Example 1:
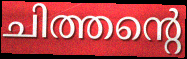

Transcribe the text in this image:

ചിത്തന്റെ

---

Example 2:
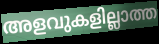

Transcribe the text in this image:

അളവുകളില്ലാത്ത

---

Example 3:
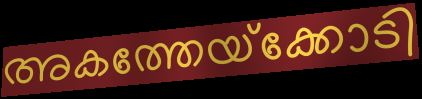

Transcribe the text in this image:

അകത്തേയ്‌ക്കോടി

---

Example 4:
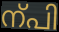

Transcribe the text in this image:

ന്പി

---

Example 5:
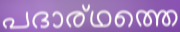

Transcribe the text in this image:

പദാര്ഥത്തെ